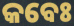
କବେଃ